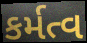
કર્મત્વ